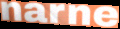
narne